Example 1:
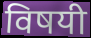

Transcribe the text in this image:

विषयी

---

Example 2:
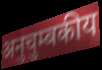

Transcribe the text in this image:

अनुचुम्बकीय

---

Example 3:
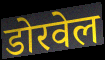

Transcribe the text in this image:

डोरवेल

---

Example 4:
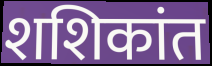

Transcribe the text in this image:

शशिकांत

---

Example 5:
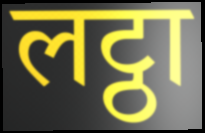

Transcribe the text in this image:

लट्ठा